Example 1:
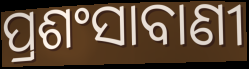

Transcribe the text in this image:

ପ୍ରଶଂସାବାଣୀ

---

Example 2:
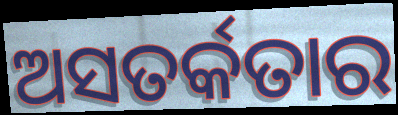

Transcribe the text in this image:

ଅସତର୍କତାର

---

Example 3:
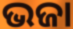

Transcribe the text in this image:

ଭଜା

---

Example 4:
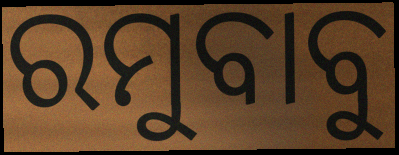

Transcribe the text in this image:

ରମୁବାବୁ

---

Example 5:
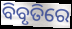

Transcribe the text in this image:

ବିବୃତିରେ